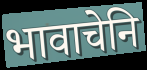
भावाचेनि